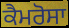
ਕੈਮਰੋਸਾ